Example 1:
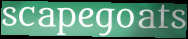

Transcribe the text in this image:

scapegoats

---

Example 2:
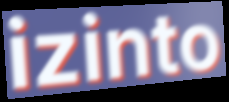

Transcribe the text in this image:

izinto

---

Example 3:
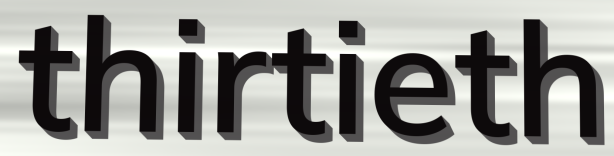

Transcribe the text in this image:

thirtieth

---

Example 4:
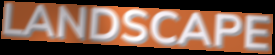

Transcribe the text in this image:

LANDSCAPE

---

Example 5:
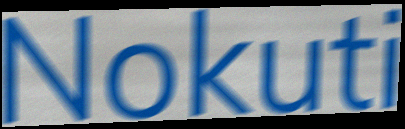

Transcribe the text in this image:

Nokuti